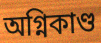
অগ্নিকাণ্ড